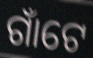
ଗାଁଟେ